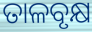
ତାଳବୃକ୍ଷ